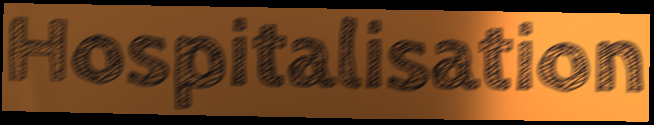
Hospitalisation